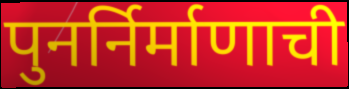
पुनर्निर्माणाची